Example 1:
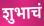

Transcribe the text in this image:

शुभाचं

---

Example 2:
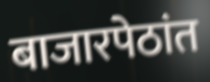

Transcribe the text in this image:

बाजारपेठांत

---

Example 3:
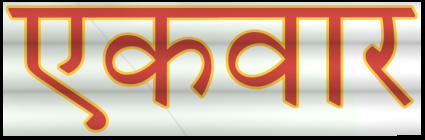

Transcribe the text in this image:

एकवार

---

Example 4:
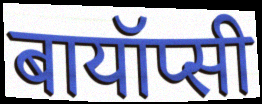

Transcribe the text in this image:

बायॉप्सी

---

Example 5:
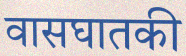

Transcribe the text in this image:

वासघातकी